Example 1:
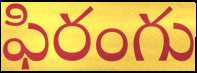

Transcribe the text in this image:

ఫిరంగు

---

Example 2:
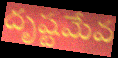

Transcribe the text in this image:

దృష్టమేవ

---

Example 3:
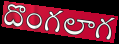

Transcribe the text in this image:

దొంగలాగ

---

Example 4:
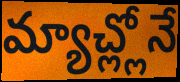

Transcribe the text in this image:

మ్యాచ్ల్లోనే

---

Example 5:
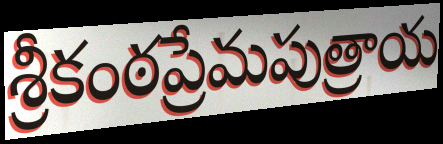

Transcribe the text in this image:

శ్రీకంఠప్రేమపుత్రాయ